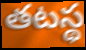
తటస్థ